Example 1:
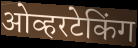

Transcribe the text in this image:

ओव्हरटेकिंग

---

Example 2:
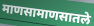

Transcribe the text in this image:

माणसामाणसातले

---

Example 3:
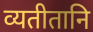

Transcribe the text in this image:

व्यतीतानि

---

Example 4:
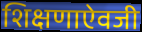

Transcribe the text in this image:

शिक्षणाऐवजी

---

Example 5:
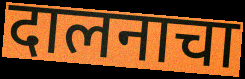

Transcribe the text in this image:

दालनाचा